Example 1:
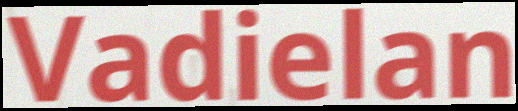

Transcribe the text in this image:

Vadielan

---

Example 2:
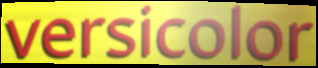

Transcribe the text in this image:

versicolor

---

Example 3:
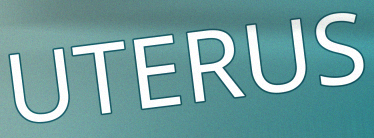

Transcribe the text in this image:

UTERUS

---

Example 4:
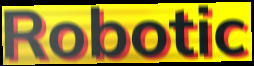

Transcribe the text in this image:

Robotic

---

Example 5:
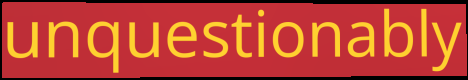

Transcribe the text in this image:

unquestionably